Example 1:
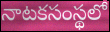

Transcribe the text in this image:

నాటకసంస్థలో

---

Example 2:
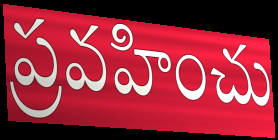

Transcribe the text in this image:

ప్రవహించు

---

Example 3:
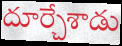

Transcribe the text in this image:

దూర్చేశాడు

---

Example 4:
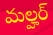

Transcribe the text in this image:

మల్హర్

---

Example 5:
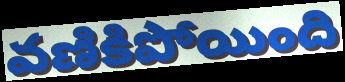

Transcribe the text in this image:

వణికిపోయింది